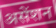
असेंशन